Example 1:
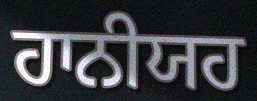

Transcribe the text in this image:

ਹਾਨੀਯਹ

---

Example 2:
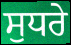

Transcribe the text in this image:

ਸੁਧਰੇ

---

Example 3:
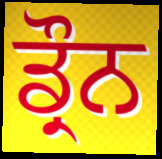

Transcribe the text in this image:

ਡ੍ਰੌਨ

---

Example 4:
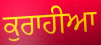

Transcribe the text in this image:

ਕੁਰਾਹੀਆ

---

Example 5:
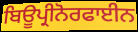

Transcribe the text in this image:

ਬਿਊਪ੍ਰੀਨੋਰਫਾਈਨ